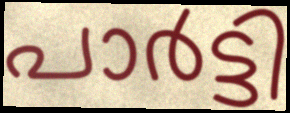
പാർട്ടി